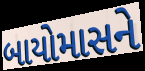
બાયોમાસને